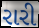
રારી